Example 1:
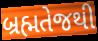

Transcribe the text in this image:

બ્રહ્મતેજથી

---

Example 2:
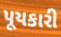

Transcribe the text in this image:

પૂયકારી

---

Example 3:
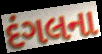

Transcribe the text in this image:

દંગલના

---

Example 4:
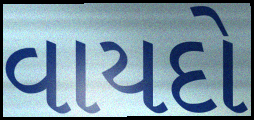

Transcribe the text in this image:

વાયદો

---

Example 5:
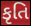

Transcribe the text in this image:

કૃતિ